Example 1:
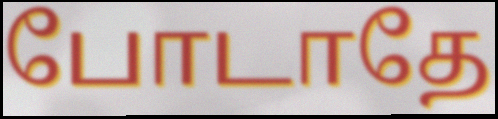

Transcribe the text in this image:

போடாதே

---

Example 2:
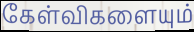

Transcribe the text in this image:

கேள்விகளையும்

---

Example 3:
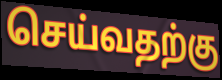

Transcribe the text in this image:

செய்வதற்கு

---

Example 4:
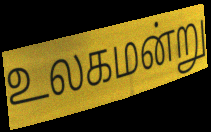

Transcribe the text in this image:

உலகமன்று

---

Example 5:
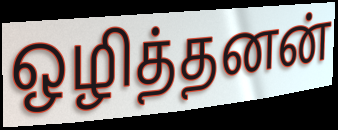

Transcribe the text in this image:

ஒழித்தனன்